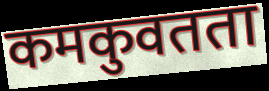
कमकुवतता